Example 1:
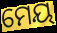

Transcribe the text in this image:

ମେୟ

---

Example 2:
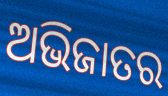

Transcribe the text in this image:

ଅଭିଜାତର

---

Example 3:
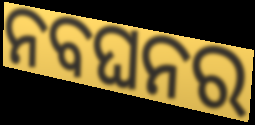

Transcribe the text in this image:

ନବଘନର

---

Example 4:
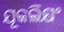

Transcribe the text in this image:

ଯୂକଲିକ୍ଷଂ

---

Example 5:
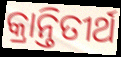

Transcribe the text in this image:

କ୍ରାନ୍ତିତୀର୍ଥ